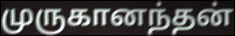
முருகானந்தன்